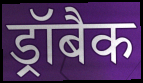
ड्रॉबैक